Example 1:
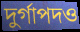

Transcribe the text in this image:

দুর্গাপদও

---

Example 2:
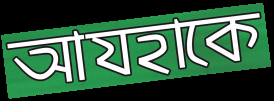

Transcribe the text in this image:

আযহাকে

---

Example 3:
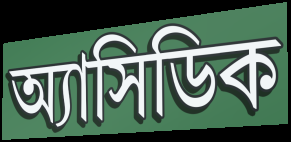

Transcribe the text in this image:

অ্যাসিডিক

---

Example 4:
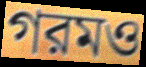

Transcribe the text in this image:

গরমও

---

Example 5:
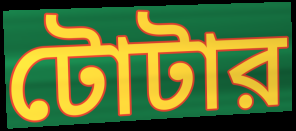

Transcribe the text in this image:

টোটার